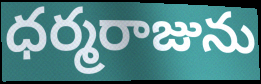
ధర్మరాజును